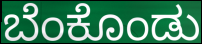
ಬೆಂಕೊಂಡು